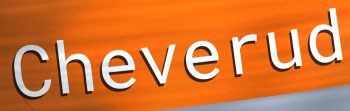
Cheverud